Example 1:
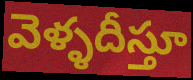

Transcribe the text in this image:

వెళ్ళదీస్తూ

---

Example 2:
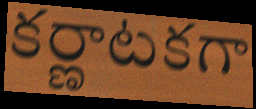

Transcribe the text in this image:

కర్ణాటకగా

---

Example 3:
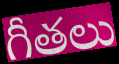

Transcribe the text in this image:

గీతలు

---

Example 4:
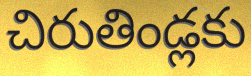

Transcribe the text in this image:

చిరుతిండ్లకు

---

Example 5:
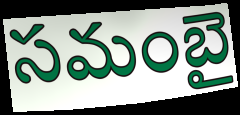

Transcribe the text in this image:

సమంబై